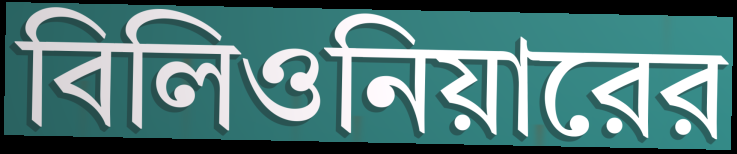
বিলিওনিয়ারের